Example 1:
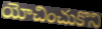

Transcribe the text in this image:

యోచించుకొని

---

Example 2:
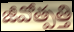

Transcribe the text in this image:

జీవోత్పత్తి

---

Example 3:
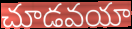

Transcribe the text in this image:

చూడవయా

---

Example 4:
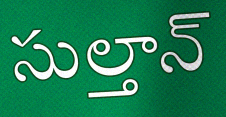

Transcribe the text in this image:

సుల్తాన్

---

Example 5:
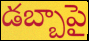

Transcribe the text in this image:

డబ్బాపై